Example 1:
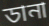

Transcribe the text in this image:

ডানা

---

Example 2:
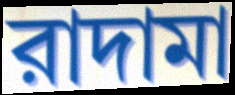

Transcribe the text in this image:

রাদামা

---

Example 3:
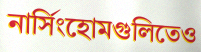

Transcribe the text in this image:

নার্সিংহোমগুলিতেও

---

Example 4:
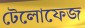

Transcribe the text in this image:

টেলোফেজ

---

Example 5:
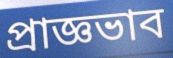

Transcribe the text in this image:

প্রাজ্ঞভাব